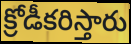
క్రోడీకరిస్తారు